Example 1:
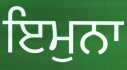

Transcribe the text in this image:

ਇਮੁਨਾ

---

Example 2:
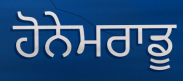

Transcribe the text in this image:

ਹੋਨੇਮਰਾਡੂ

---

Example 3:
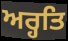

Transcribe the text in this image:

ਅਰ੍ਹਤਿ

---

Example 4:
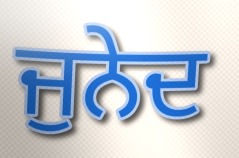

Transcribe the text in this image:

ਜੁਨੇਦ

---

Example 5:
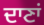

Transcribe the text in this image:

ਦਾਣਾਂ